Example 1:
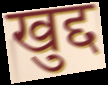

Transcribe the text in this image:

खुद्द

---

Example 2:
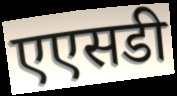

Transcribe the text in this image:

एएसडी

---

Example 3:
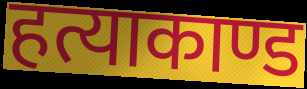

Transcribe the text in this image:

हत्याकाण्ड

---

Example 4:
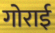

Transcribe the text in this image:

गोराई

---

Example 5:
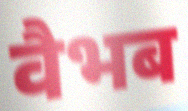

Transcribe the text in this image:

वैभब